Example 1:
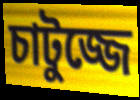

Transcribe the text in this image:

চাটুজ্জে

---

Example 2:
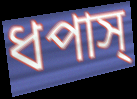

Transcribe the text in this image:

ধপাস্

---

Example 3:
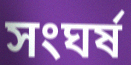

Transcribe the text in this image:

সংঘর্ষ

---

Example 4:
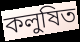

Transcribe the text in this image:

কলুষিত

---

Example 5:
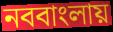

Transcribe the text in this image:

নববাংলায়